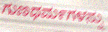
ಗುಣಧರ್ಮಗಳನ್ನು